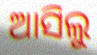
ଆସିଲୁ